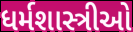
ધર્મશાસ્ત્રીઓ